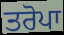
ਤਰੋਪਾ